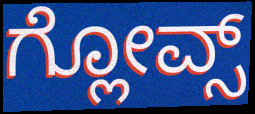
ಗ್ಲೋವ್ಸ್